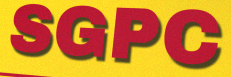
SGPC